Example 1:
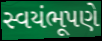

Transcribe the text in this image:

સ્વયંભૂપણે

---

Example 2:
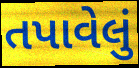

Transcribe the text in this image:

તપાવેલું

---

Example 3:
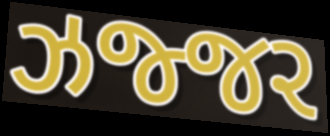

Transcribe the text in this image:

ઝજ્જર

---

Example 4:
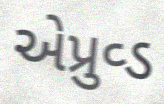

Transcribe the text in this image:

એપ્રુવ્ડ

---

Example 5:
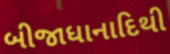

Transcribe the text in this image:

બીજાધાનાદિથી